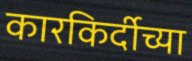
कारकिर्दीच्या